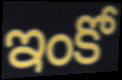
ఇంకో